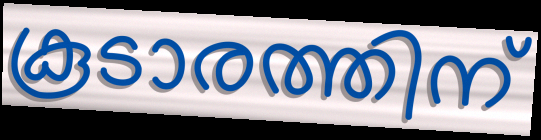
കൂടാരത്തിന്